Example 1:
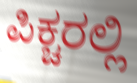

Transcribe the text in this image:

ಪಿಕ್ಚರಲ್ಲಿ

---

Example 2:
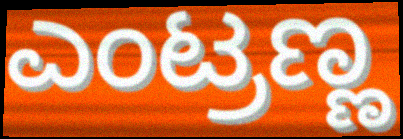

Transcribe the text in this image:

ಎಂಟ್ರಣ್ಣ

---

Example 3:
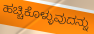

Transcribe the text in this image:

ಹಚ್ಚಿಕೊಳ್ಳುವುದನ್ನು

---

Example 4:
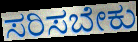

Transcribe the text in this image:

ಸರಿಸಬೇಕು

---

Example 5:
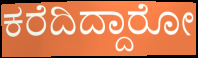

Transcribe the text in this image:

ಕರೆದಿದ್ದಾರೋ